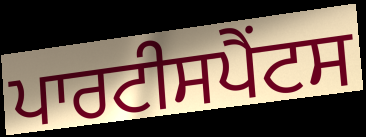
ਪਾਰਟੀਸਪੈਂਟਸ